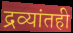
द्रव्यांतही